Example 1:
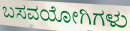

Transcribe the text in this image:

ಬಸವಯೋಗಿಗಳು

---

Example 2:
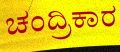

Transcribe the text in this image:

ಚಂದ್ರಿಕಾರ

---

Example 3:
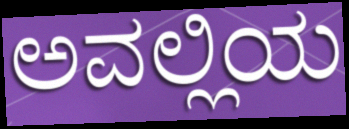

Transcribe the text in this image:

ಅವಲ್ಲಿಯ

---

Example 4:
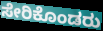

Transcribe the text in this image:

ಸೇರಿಕೊಂಡರು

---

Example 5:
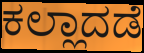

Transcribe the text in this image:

ಕಲ್ಲಾದಡೆ